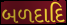
બળદાદિ